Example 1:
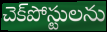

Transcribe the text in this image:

చెక్‌పోస్టులను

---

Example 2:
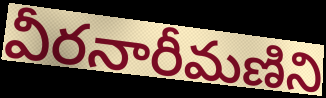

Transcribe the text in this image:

వీరనారీమణిని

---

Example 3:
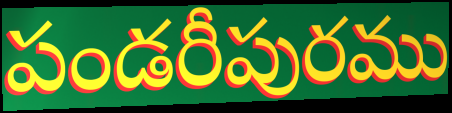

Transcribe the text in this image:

పండరీపురము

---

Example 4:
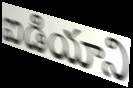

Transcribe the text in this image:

ఐడియాని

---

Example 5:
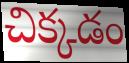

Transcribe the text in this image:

చిక్కడం